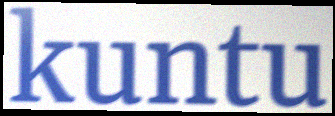
kuntu